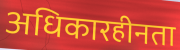
अधिकारहीनता